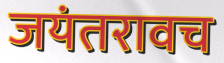
जयंतरावच